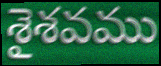
శైశవము